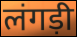
लंगड़ी